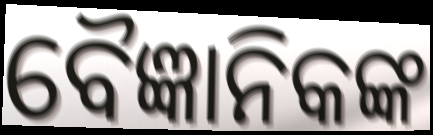
ବୈଜ୍ଞାନିକଙ୍କ